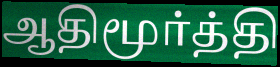
ஆதிமூர்த்தி